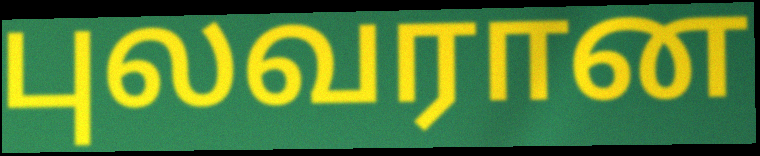
புலவரான